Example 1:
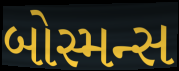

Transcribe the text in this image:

બોસ્મન્સ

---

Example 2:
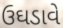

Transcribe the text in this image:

ઉઘડાવે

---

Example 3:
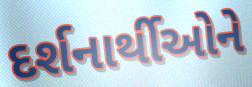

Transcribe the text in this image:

દર્શનાર્થીઓને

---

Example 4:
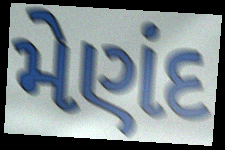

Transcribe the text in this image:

મેણંદ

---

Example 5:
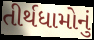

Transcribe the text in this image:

તીર્થધામોનું